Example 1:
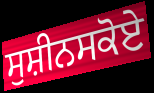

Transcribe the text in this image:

ਸੁਸ਼ੀਨਸਕੋਏ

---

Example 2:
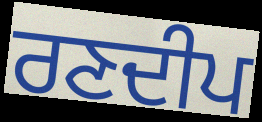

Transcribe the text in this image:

ਰਣਦੀਪ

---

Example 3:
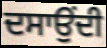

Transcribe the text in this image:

ਦਸਾਉਂਦੀ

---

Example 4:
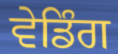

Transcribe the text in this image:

ਵੇਡਿੰਗ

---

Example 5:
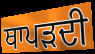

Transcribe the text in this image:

ਥਾਪੜਦੀ